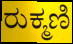
ರುಕ್ಮಣಿ